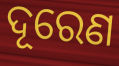
ଦୂରେଣ